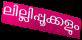
ലില്ലിപ്പൂക്കളും